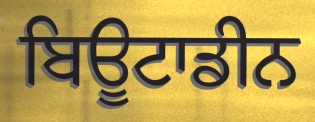
ਬਿਊਟਾਡੀਨ